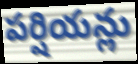
పర్షియన్లు